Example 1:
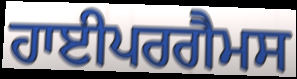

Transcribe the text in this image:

ਹਾਈਪਰਗੈਮਸ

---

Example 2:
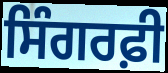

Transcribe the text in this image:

ਸਿੰਗਰਫ਼ੀ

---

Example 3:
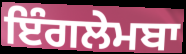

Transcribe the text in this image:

ਇੰਗਲੇਮਬਾ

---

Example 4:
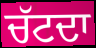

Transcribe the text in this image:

ਚੱਟਦਾ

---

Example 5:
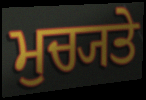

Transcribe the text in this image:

ਮੁਚ੍ਯਤੇ